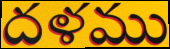
దళము